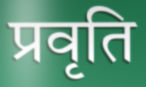
प्रवृति